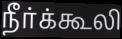
நீர்க்கூலி